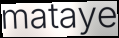
mataye